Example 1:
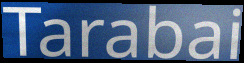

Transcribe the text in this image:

Tarabai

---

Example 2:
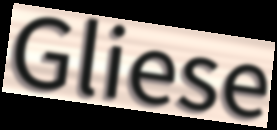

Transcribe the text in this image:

Gliese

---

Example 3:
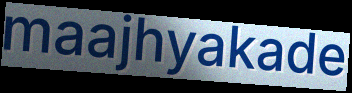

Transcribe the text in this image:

maajhyakade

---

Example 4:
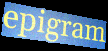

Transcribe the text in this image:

epigram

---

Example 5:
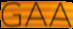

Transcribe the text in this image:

GAA